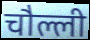
चौल्ली